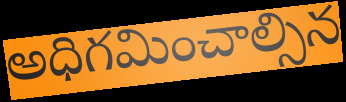
అధిగమించాల్సిన